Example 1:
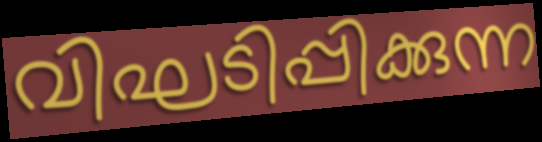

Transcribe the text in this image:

വിഘടിപ്പിക്കുന്ന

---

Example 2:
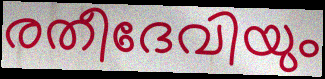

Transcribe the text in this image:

രതീദേവിയും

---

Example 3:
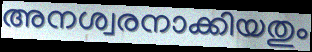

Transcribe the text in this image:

അനശ്വരനാക്കിയതും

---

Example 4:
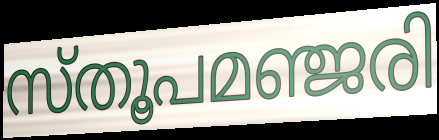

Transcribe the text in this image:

സ്തൂപമഞ്ജരി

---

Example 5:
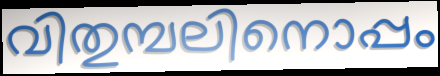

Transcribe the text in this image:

വിതുമ്പലിനൊപ്പം